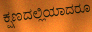
ಕ್ಷಣದಲ್ಲಿಯಾದರೂ